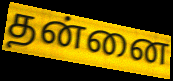
தன்னை